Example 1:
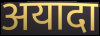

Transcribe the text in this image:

अयादा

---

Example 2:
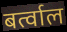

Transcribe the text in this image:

बर्त्वाल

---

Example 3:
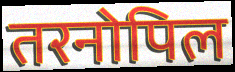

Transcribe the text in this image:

तरनोपिल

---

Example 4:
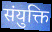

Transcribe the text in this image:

संयुक्ति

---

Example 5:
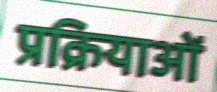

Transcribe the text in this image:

प्रक्रियाओं